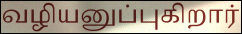
வழியனுப்புகிறார்